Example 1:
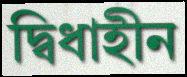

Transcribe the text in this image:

দ্বিধাহীন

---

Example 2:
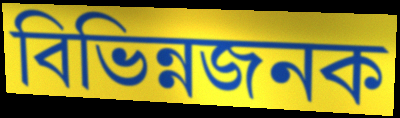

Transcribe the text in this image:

বিভিন্নজনক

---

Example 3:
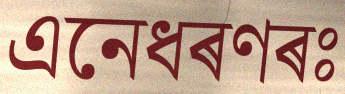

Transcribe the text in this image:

এনেধৰণৰঃ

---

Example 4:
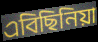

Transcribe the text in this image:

এবিছিনিয়া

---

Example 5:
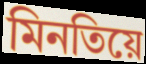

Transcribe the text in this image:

মিনতিয়ে